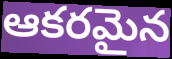
ఆకరమైన